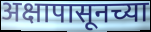
अक्षापासूनच्या